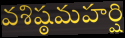
వశిష్ఠమహర్షి